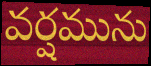
వర్షమును